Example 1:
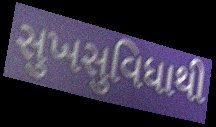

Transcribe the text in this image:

સુખસુવિધાથી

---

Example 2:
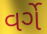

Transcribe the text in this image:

વર્ગે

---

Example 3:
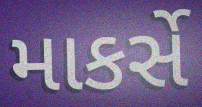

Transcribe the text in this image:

માકર્સે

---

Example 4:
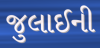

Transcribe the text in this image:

જુલાઈની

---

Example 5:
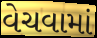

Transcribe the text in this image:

વેચવામાં